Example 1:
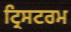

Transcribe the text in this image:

ਟ੍ਰਿਸਟਰਮ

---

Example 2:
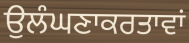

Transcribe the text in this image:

ਉਲੰਘਣਾਕਰਤਾਵਾਂ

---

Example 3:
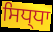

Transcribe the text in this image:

ਸਿਧ੍ਧਾ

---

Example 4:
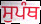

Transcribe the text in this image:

ਸੁਪੰਥ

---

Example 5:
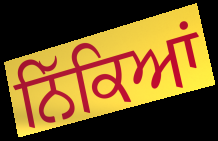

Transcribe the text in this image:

ਨਿੱਕਿਆਂ